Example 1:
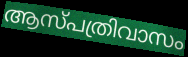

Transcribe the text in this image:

ആസ്പത്രിവാസം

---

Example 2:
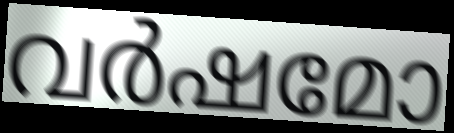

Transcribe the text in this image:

വർഷമോ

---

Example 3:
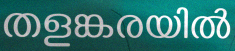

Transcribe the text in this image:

തളങ്കരയിൽ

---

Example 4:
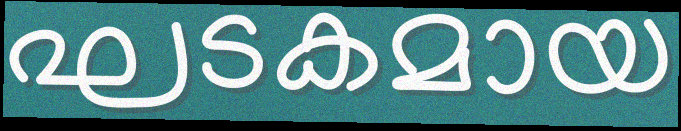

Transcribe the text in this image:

ഘടകമായ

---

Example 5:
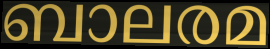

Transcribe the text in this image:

ബാലരമ